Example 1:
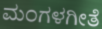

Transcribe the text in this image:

ಮಂಗಳಗೀತೆ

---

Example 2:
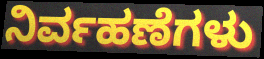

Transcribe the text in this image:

ನಿರ್ವಹಣೆಗಳು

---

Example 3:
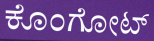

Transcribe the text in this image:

ಕೊಂಗೋಟ್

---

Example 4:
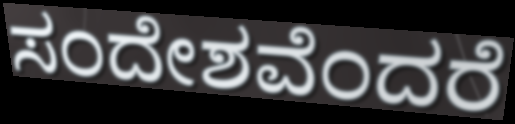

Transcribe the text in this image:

ಸಂದೇಶವೆಂದರೆ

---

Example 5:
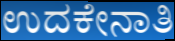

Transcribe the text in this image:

ಉದಕೇನಾತಿ